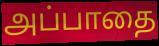
அப்பாதை